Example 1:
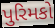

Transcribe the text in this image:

પુરિમકો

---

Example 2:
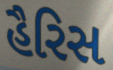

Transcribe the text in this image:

હૈરિસ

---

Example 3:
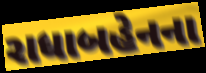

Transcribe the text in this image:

રાધાબહેનના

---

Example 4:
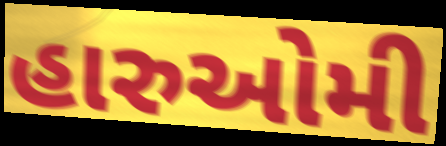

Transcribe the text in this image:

હારુઓમી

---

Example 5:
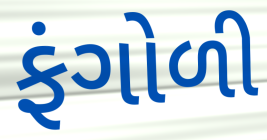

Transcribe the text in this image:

ફંગોળી